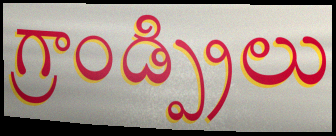
గ్రాండ్ప్రిలు